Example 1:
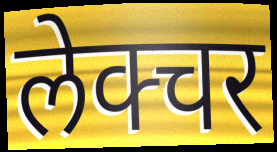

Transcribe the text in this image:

लेक्चर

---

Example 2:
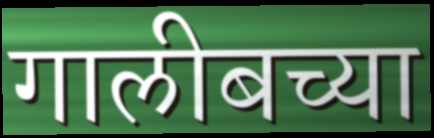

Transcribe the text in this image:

गालीबच्या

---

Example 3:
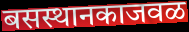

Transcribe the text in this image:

बसस्थानकाजवळ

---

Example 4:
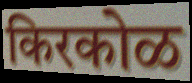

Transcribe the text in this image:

किरकोळ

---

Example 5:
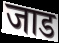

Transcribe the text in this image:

जाड